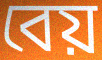
বেয়